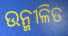
ଉନ୍ମୀଳିତ